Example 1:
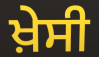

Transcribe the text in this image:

ਖ਼ੇਸੀ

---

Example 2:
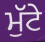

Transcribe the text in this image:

ਮੁੱਟੇ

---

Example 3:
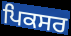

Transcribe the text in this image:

ਪਿਕਸਰ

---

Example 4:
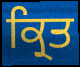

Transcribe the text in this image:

ਕ੍ਰਿਤ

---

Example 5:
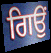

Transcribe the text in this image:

ਗਿਉਂ